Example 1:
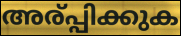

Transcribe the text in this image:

അര്പ്പിക്കുക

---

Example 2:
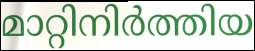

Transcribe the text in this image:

മാറ്റിനിർത്തിയ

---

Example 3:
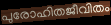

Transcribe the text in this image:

പുരോഹിതജീവിതം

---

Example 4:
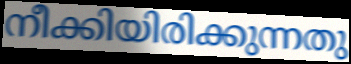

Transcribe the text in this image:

നീക്കിയിരിക്കുന്നതു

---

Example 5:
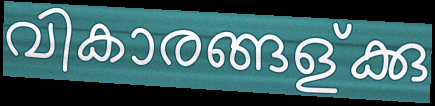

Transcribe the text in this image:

വികാരങ്ങള്ക്കു